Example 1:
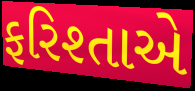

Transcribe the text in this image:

ફરિશ્તાએ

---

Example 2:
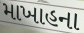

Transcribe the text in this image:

માખાહના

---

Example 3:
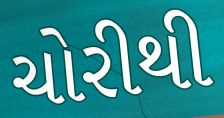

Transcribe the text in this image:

ચોરીથી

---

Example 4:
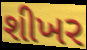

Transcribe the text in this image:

શીખર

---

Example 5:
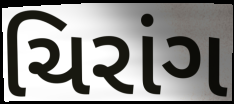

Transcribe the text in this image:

ચિરાંગ